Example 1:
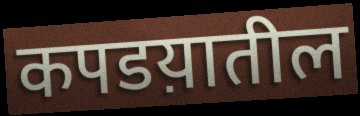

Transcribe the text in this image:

कपडय़ातील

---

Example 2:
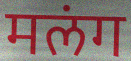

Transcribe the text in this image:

मलंग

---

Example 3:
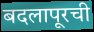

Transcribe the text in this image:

बदलापूरची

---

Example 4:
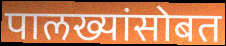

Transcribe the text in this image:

पालख्यांसोबत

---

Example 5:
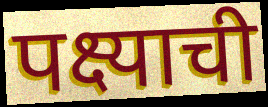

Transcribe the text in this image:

पक्ष्याची